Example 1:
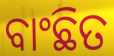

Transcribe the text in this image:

ବାଂଛିତ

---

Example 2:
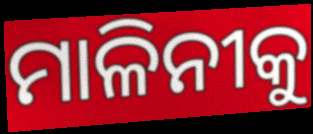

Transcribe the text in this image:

ମାଳିନୀକୁ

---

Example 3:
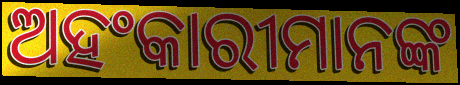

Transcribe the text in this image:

ଅହଂକାରୀମାନଙ୍କ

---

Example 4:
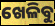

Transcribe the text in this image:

ଖେଳିବୁ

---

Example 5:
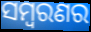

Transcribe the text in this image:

ସମ୍ବରଣର